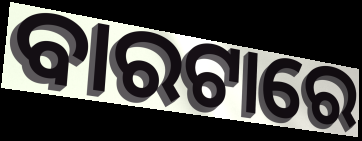
ବାରଟାରେ